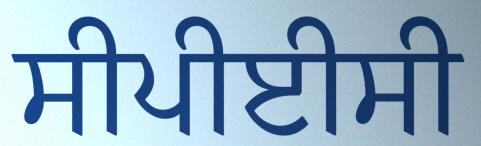
ਸੀਪੀਈਸੀ